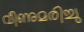
വീണുമരിച്ചു